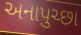
અનાપુચ્છા